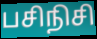
பசிநிசி